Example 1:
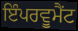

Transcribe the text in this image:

ਇੰਪਰਵੂਮੈਂਟ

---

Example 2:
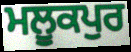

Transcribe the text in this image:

ਮਲੂਕਪੁਰ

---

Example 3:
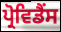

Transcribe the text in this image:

ਪ੍ਰੋਵਿਡੈਂਸ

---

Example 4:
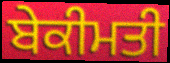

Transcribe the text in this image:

ਬੇਕੀਮਤੀ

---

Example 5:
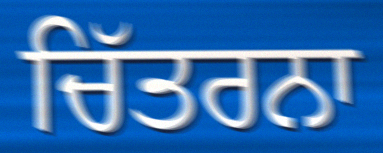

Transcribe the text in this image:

ਚਿੱਤਰਨਾ